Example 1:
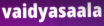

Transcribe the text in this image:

vaidyasaala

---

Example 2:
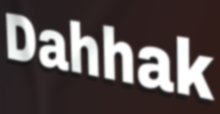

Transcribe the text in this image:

Dahhak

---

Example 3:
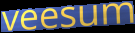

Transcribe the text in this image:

veesum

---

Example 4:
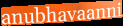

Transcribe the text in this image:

anubhavaanni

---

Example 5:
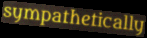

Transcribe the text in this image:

sympathetically